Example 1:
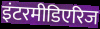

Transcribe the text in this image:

इंटरमीडिएरिज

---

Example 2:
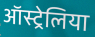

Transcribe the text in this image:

ऑस्ट्रेलिया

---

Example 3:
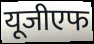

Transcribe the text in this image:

यूजीएफ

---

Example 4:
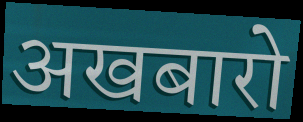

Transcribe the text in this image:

अखबारो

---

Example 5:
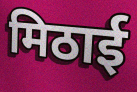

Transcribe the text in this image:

मिठाई